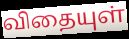
விதையுள்